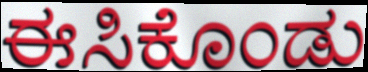
ಈಸಿಕೊಂಡು